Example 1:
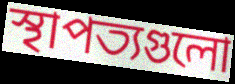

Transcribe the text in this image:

স্থাপত্যগুলো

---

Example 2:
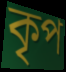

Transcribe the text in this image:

কৃপ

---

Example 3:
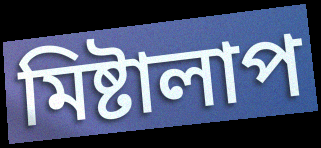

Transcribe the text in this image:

মিষ্টালাপ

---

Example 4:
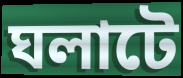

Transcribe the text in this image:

ঘলাটে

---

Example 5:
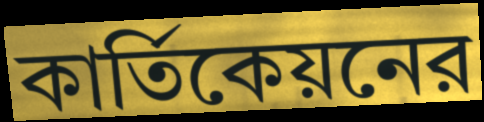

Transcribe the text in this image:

কার্তিকেয়নের